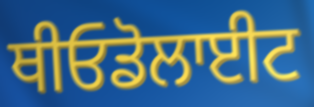
ਥੀਓਡੋਲਾਈਟ